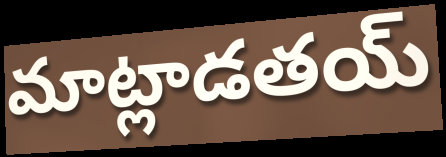
మాట్లాడతయ్